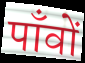
पाँवों